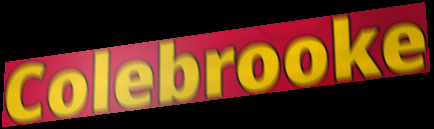
Colebrooke